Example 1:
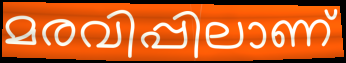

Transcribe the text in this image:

മരവിപ്പിലാണ്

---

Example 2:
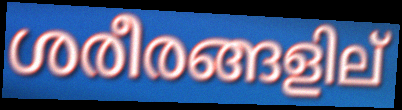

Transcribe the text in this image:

ശരീരങ്ങളില്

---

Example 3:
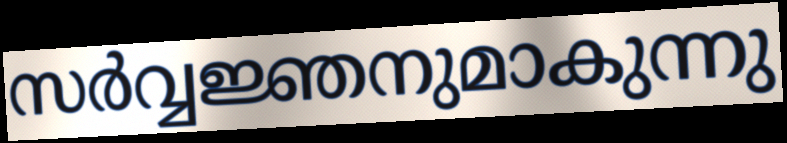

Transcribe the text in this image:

സർവ്വജ്ഞനുമാകുന്നു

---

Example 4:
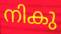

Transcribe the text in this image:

നികു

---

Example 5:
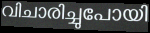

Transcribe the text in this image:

വിചാരിച്ചുപോയി